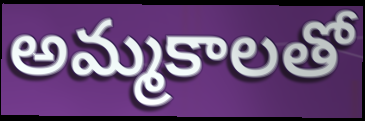
అమ్మకాలతో